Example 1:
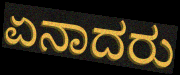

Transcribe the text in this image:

ಏನಾದರು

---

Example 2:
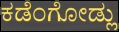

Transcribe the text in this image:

ಕಡೆಂಗೋಡ್ಲು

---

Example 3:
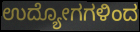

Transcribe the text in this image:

ಉದ್ಯೋಗಗಳಿಂದ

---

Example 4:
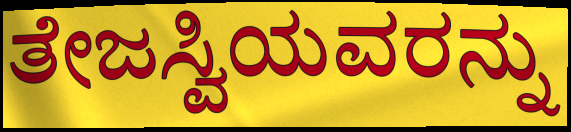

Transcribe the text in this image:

ತೇಜಸ್ವಿಯವರನ್ನು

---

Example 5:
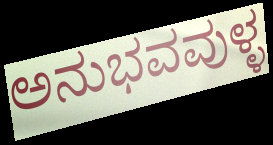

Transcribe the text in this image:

ಅನುಭವವುಳ್ಳ